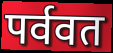
पर्ववत